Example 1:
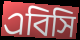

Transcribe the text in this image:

এবিসি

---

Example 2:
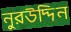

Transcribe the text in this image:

নুরউদ্দিন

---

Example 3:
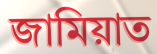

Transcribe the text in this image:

জামিয়াত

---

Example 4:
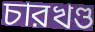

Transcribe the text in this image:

চারখণ্ড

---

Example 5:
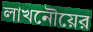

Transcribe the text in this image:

লাখনৌয়ের